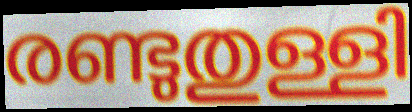
രണ്ടുതുള്ളി